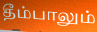
தீம்பாலும்